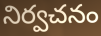
నిర్వచనం